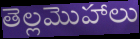
తెల్లమొహాలు